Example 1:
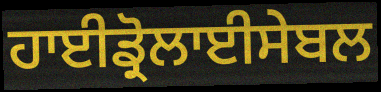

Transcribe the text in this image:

ਹਾਈਡ੍ਰੋਲਾਈਸੇਬਲ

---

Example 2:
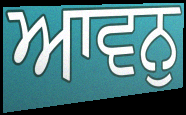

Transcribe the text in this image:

ਆਵਨੁ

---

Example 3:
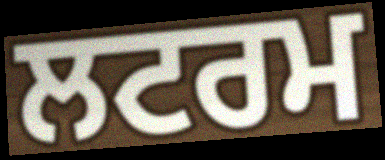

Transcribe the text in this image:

ਲਟਰਮ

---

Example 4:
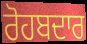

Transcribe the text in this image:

ਰੋਹਬਦਾਰ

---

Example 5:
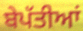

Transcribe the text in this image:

ਬੇਪੱਤੀਆਂ